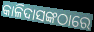
କାଳିଦାସଙ୍କଠାରେ